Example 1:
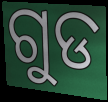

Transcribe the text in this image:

ଗୁଡ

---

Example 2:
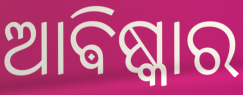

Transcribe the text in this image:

ଆଵିଷ୍କାର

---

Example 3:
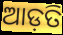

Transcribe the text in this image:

ଆଡ଼ତି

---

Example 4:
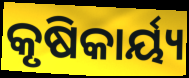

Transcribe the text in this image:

କୃଷିକାର୍ୟ୍ୟ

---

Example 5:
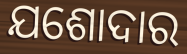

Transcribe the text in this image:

ଯଶୋଦାର